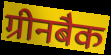
ग्रीनबैक